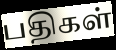
பதிகள்